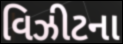
વિઝીટના